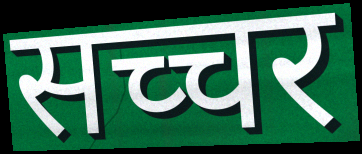
सच्चर